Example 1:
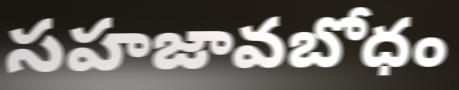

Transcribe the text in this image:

సహజావబోధం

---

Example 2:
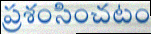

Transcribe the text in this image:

ప్రశంసించటం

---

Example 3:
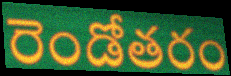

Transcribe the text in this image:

రెండోతరం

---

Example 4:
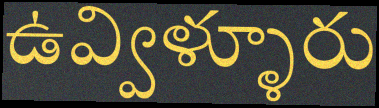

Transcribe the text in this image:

ఉవ్విళ్ళూరు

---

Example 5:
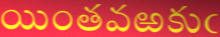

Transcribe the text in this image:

యింతవఱకుఁ